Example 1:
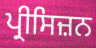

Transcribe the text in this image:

ਪ੍ਰੀਸਿਜ਼ਨ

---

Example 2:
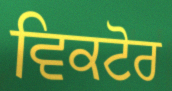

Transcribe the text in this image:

ਵਿਕਟੋਰ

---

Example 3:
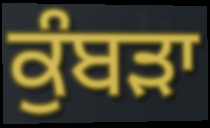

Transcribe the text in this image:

ਕੁੰਬੜਾ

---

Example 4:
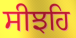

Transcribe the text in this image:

ਸੀਝਹਿ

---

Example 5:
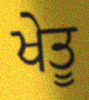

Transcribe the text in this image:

ਖੇਤੂ